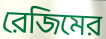
রেজিমের